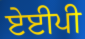
ਏਈਪੀ